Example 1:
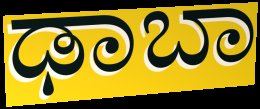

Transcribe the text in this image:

ಢಾಬಾ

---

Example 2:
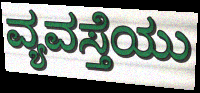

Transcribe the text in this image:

ವ್ಯವಸ್ತೆಯು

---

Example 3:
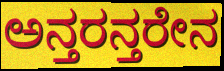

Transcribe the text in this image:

ಅನ್ತರನ್ತರೇನ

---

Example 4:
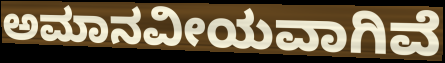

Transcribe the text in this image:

ಅಮಾನವೀಯವಾಗಿವೆ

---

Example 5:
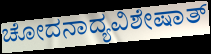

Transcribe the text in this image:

ಚೋದನಾದ್ಯವಿಶೇಷಾತ್